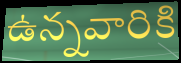
ఉన్నవారికి